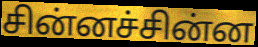
சின்னச்சின்ன